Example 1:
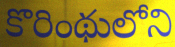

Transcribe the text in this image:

కొరింథులోని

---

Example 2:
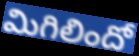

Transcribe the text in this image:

మిగిలిందో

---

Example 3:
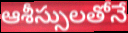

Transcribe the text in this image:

ఆశీస్సులతోనే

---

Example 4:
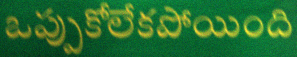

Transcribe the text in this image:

ఒప్పుకోలేకపోయింది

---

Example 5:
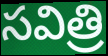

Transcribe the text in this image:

సవిత్రి